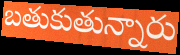
బతుకుతున్నారు